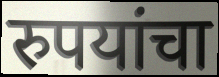
रुपयांचा